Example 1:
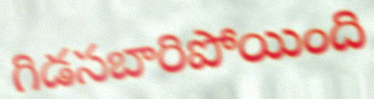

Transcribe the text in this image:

గిడసబారిపోయింది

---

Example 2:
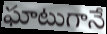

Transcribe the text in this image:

ఘాటుగానే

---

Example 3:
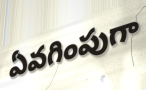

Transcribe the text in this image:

ఏవగింపుగా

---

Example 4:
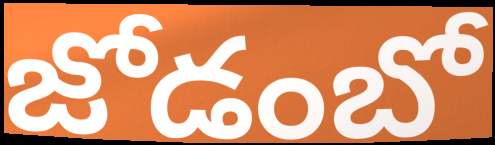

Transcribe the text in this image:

జోడంబో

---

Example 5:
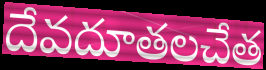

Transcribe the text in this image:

దేవదూతలచేత